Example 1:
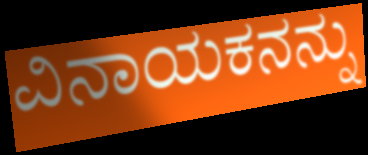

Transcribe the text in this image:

ವಿನಾಯಕನನ್ನು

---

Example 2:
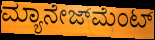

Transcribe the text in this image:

ಮ್ಯಾನೇಜ್‍ಮೆಂಟ್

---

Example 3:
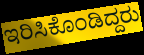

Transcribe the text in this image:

ಇರಿಸಿಕೊಂಡಿದ್ದರು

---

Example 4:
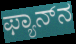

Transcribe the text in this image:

ಫ್ಯಾನ್‌ನ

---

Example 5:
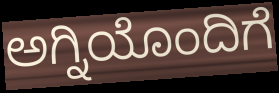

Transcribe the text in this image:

ಅಗ್ನಿಯೊಂದಿಗೆ